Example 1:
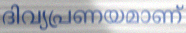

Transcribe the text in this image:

ദിവ്യപ്രണയമാണ്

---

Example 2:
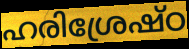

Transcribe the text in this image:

ഹരിശ്രേഷ്ഠ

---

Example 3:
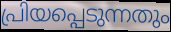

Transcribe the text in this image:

പ്രിയപ്പെടുന്നതും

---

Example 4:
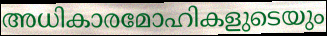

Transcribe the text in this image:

അധികാരമോഹികളുടെയും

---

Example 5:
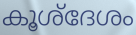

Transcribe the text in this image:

കൂശ്ദേശം